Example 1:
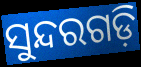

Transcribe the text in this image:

ସୁନ୍ଦରଗଡ଼ି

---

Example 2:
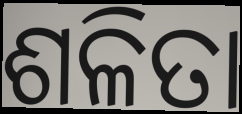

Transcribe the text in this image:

ଶଳିତା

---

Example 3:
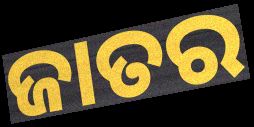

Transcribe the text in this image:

ଜାତର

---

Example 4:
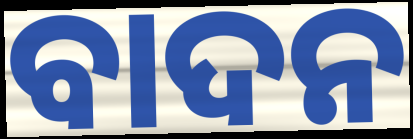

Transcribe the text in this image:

ବାଦନ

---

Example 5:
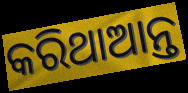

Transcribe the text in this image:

କରିଥାଆନ୍ତ